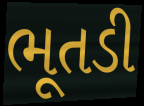
ભૂતડી